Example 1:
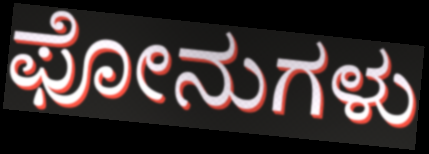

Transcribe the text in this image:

ಫೋನುಗಳು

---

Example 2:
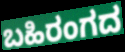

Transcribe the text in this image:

ಬಹಿರಂಗದ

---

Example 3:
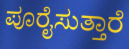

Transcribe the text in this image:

ಪೂರೈಸುತ್ತಾರೆ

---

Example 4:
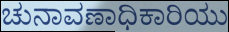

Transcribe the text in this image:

ಚುನಾವಣಾಧಿಕಾರಿಯು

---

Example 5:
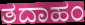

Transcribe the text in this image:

ತದಾಹಂ